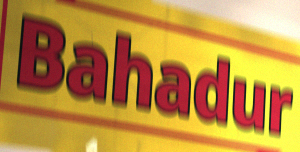
Bahadur